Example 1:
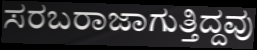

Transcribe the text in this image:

ಸರಬರಾಜಾಗುತ್ತಿದ್ದವು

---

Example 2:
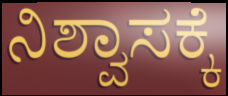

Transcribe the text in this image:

ನಿಶ್ವಾಸಕ್ಕೆ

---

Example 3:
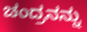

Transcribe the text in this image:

ಚಂದ್ರನನ್ನು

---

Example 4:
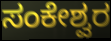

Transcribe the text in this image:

ಸಂಕೇಶ್ವರ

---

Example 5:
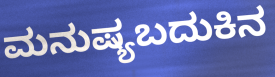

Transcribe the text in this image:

ಮನುಷ್ಯಬದುಕಿನ